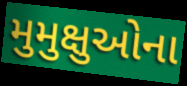
મુમુક્ષુઓના